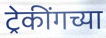
ट्रेकींगच्या